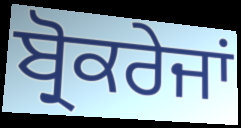
ਬ੍ਰੋਕਰੇਜਾਂ